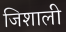
जिशाली